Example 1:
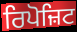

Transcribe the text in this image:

ਰਿਪੋਜ਼ਿਟ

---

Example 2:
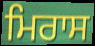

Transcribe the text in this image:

ਮਿਰਾਸ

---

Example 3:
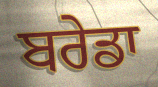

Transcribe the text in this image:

ਬਰੇਡਾ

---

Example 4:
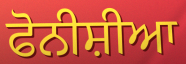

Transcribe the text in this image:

ਫੋਨੀਸ਼ੀਆ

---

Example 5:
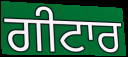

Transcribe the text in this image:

ਗੀਟਾਰ